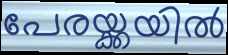
പേരയ്ക്കയിൽ